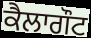
ਕੈਲਾਗੌਟ